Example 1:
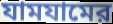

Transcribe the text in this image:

যামযামের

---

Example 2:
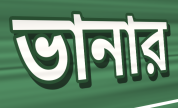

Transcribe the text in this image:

ভানার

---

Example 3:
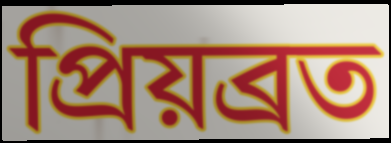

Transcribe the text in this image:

প্রিয়ব্রত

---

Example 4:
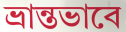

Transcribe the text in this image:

ভ্রান্তভাবে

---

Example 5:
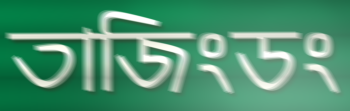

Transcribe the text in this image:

তাজিংডং